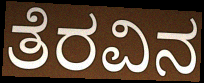
ತೆರವಿನ